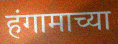
हंगामाच्या